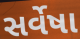
સર્વેષા